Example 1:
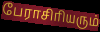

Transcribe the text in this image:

பேராசிரியரும்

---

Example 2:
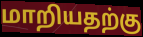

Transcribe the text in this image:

மாறியதற்கு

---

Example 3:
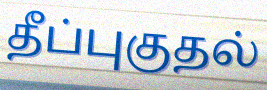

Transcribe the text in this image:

தீப்புகுதல்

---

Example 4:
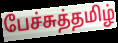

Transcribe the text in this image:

பேச்சுத்தமிழ்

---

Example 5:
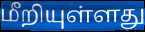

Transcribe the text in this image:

மீறியுள்ளது